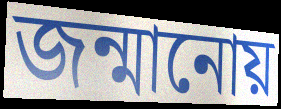
জন্মানোয়